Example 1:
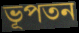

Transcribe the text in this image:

ভূপতন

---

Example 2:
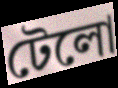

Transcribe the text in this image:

টেলো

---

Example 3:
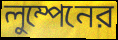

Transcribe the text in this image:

লুম্পেনের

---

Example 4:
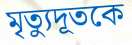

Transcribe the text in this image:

মৃত্যুদূতকে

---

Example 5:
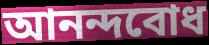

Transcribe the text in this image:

আনন্দবোধ